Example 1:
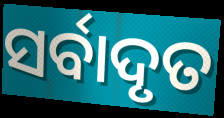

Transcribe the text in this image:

ସର୍ବାଦୃତ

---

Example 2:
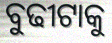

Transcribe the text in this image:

ବୁଢୀଟାକୁ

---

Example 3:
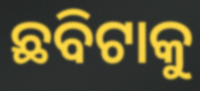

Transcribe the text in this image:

ଛବିଟାକୁ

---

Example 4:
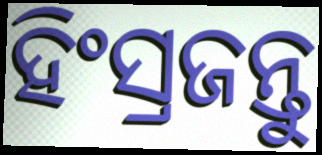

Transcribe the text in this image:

ହିଂସ୍ରଜନ୍ତୁ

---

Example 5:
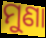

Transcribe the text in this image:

ମୁଣା